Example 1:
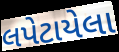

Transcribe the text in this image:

લપેટાયેલા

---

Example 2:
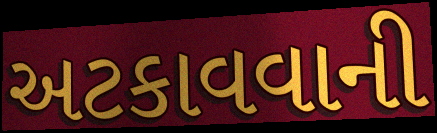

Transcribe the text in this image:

અટકાવવાની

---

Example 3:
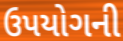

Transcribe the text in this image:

ઉપયોગની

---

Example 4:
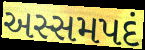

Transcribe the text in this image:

અસ્સમપદં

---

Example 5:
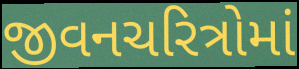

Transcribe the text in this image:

જીવનચરિત્રોમાં